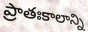
ప్రాతఃకాలాన్ని